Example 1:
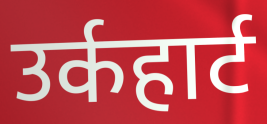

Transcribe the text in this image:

उर्कहार्ट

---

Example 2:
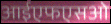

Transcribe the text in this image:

आईएफएसओ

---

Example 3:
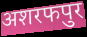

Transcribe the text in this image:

अशरफपुर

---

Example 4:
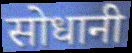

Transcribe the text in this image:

सोधानी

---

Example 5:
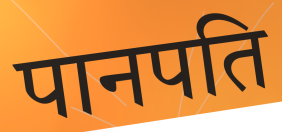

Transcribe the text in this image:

पानपति